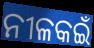
ନୀଳକଇଁ